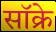
सॉक्रे